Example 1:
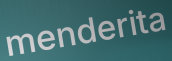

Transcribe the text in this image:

menderita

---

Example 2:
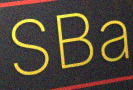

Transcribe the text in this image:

SBa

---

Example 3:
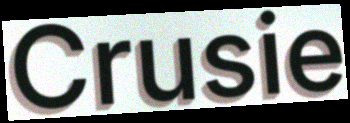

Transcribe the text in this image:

Crusie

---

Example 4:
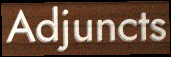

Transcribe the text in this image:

Adjuncts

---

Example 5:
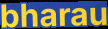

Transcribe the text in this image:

bharau